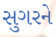
સુગરને